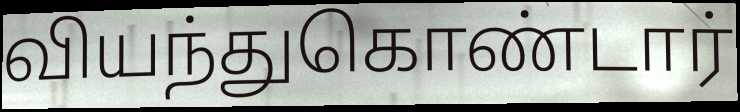
வியந்துகொண்டார்